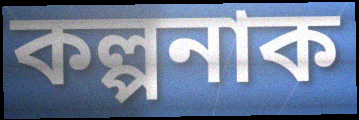
কল্পনাক